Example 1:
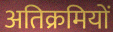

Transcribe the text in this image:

अतिक्रमियों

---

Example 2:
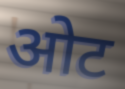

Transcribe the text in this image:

ओट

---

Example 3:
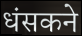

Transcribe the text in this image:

धंसकने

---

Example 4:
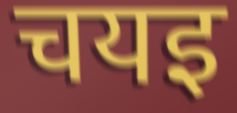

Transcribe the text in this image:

चयइ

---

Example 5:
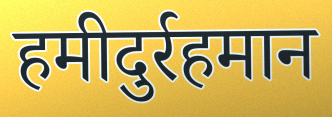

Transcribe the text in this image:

हमीदुर्रहमान